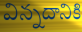
విన్నదానికి